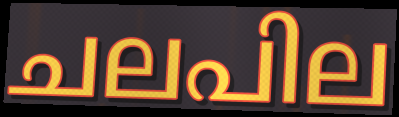
ചലപില